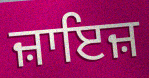
ਜ਼ਾਇਜ਼